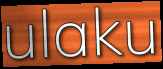
ulaku